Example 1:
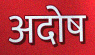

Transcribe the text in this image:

अदोष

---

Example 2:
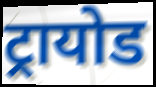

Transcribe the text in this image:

ट्रायोड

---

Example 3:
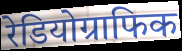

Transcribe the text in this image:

रेडियोग्राफिक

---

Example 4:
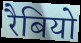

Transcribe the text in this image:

रैबियो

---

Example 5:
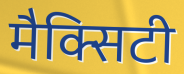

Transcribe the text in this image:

मैक्सिटी